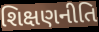
શિક્ષણનીતિ